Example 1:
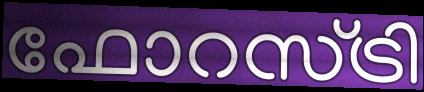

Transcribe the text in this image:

ഫോറസ്ട്രി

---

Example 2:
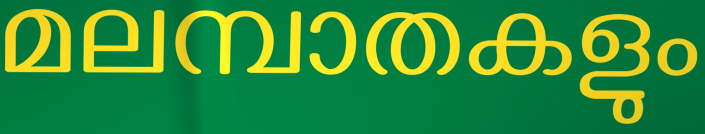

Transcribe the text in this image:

മലമ്പാതകളും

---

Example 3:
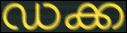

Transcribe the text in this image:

ഡക്ക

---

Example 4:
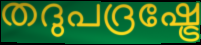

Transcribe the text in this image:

തദുപദ്രഷ്ട്രേ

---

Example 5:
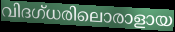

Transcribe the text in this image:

വിദഗ്ധരിലൊരാളായ